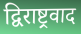
द्विराष्ट्रवाद